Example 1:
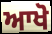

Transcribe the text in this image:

ਆਖੋ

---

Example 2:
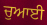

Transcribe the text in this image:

ਚੁਆਈ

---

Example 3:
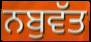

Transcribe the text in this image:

ਨਬੁਵੱਤ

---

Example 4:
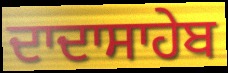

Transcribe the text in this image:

ਦਾਦਾਸਾਹੇਬ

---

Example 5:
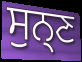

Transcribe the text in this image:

ਸੁਨ੍ਣ